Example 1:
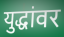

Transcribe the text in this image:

युद्धांवर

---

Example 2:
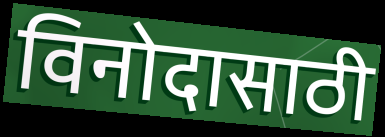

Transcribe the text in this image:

विनोदासाठी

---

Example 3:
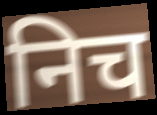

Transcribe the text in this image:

निच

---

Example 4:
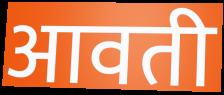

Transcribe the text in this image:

आवती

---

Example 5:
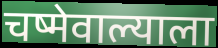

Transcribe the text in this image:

चष्मेवाल्याला